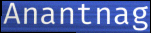
Anantnag